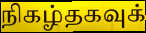
நிகழ்தகவுக்